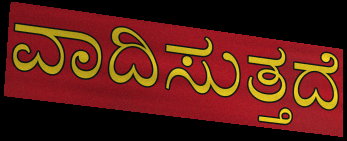
ವಾದಿಸುತ್ತದೆ